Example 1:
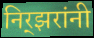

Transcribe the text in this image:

निर्झरांनी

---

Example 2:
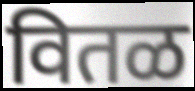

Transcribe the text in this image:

वितळ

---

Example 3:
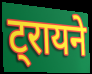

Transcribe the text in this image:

ट्रायने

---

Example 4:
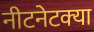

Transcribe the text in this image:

नीटनेटक्‍या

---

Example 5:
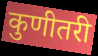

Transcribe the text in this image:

कुणीतरी